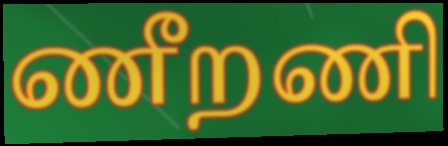
ணீறணி